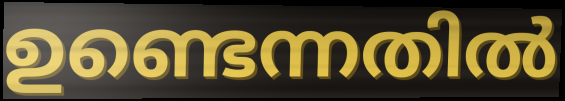
ഉണ്ടെന്നതിൽ